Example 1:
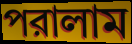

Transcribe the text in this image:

পরালাম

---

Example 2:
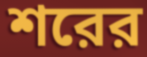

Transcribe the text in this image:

শরের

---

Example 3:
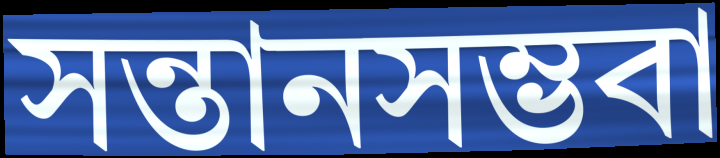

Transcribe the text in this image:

সন্তানসম্ভবা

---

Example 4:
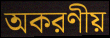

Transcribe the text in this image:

অকরণীয়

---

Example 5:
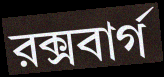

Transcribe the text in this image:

রক্সবার্গ